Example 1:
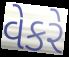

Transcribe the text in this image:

વેકરે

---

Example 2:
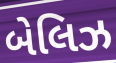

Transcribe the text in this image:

બેલિઝ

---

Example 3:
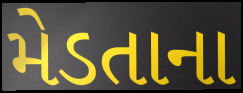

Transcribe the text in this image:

મેડતાના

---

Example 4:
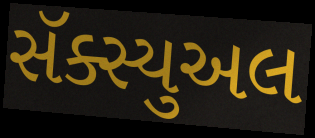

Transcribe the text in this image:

સૅક્સ્યુઅલ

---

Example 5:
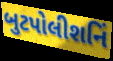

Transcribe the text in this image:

બુટપોલીશનિં